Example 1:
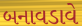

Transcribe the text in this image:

બનાવડાવે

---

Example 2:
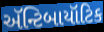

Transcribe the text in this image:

ઍન્ટિબાયૉટિક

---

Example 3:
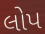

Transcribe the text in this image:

લોપ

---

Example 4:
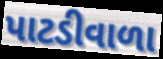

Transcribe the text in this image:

પાટડીવાળા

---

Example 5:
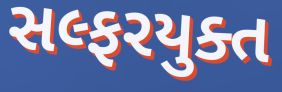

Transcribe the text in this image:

સલ્ફરયુક્ત